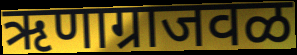
ऋणाग्राजवळ